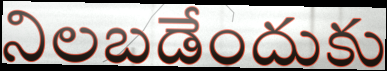
నిలబడేందుకు